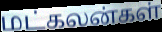
மட்கலன்கள்